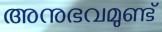
അനുഭവമുണ്ട്